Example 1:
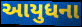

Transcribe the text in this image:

આયુધના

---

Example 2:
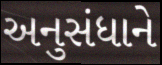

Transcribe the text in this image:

અનુસંધાને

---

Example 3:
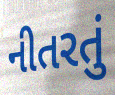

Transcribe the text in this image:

નીતરતું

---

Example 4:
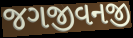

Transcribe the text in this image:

જગજીવનજી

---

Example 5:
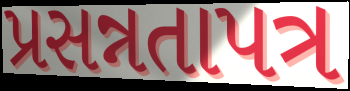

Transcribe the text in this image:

પ્રસન્નતાપત્ર